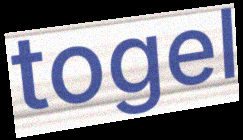
togel